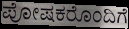
ಪೋಷಕರೊಂದಿಗೆ